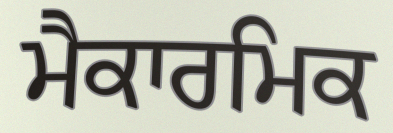
ਮੈਕਾਰਮਿਕ